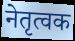
नेतृत्वक